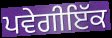
ਪਵੇਗੀਇੱਕ